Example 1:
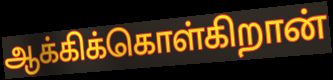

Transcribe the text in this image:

ஆக்கிக்கொள்கிறான்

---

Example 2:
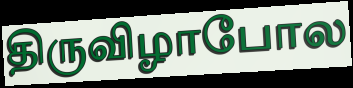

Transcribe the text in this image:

திருவிழாபோல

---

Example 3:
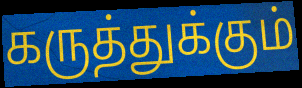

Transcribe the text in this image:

கருத்துக்கும்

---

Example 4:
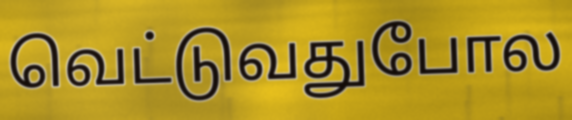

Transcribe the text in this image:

வெட்டுவதுபோல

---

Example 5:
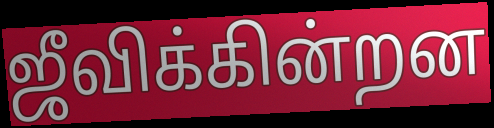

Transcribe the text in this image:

ஜீவிக்கின்றன